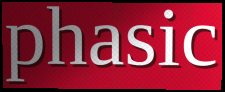
phasic